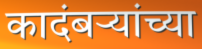
कादंबर्‍यांच्या